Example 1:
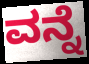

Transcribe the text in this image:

ವನ್ನೆ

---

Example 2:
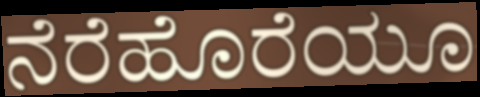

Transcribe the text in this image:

ನೆರೆಹೊರೆಯೂ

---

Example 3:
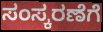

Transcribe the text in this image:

ಸಂಸ್ಕರಣೆಗೆ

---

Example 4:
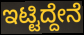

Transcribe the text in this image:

ಇಟ್ಟಿದ್ದೇನೆ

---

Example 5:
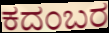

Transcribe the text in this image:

ಕದಂಬರ